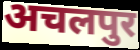
अचलपुर